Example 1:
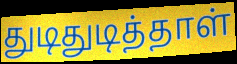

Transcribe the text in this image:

துடிதுடித்தாள்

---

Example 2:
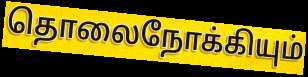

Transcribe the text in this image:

தொலைநோக்கியும்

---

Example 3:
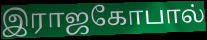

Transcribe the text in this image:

இராஜகோபால்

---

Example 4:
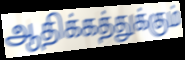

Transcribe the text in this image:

ஆதிக்கத்துக்கும்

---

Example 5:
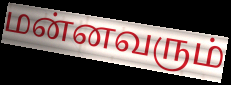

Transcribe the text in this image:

மன்னவரும்